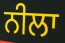
ਨੀਲਾ